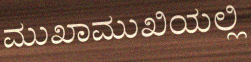
ಮುಖಾಮುಖಿಯಲ್ಲಿ